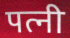
पत्नी